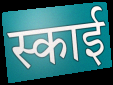
स्काई